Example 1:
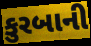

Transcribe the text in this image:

કુરબાની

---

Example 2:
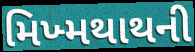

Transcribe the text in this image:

મિખ્મથાથની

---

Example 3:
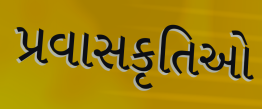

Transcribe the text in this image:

પ્રવાસકૃતિઓ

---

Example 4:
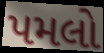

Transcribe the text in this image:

પમલો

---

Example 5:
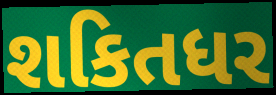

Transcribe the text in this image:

શકિતધર